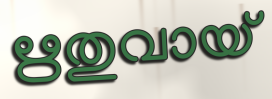
ഋതുവായ്